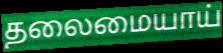
தலைமையாய்